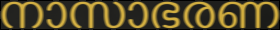
നാസാഭരണ